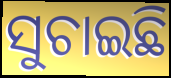
ସୁଚାଇଛି